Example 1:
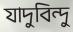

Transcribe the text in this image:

যাদুবিন্দু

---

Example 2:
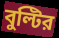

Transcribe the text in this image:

বুল্টির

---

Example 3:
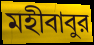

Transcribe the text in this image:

মহীবাবুর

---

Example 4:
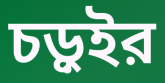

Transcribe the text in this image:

চড়ুইর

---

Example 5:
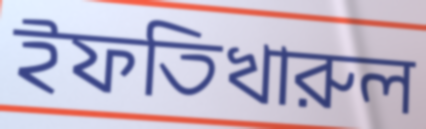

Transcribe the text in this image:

ইফতিখারুল